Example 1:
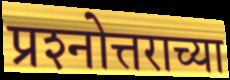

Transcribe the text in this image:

प्रश्नोत्तराच्या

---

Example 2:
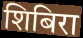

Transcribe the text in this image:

शिबिरा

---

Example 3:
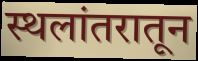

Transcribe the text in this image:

स्थलांतरातून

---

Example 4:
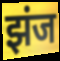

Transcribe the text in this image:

झंज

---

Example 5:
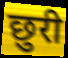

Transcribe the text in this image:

छुरी